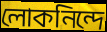
লোকনিন্দে